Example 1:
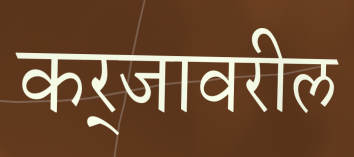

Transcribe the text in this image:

कर्जावरील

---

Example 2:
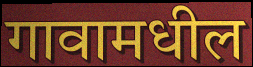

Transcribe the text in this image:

गावामधील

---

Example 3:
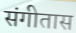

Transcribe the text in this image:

संगीतास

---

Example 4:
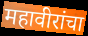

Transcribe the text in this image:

महावीरांचा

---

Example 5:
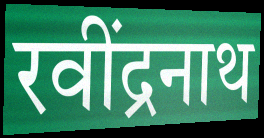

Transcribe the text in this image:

रवींद्रनाथ